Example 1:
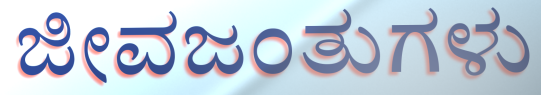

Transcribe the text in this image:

ಜೀವಜಂತುಗಳು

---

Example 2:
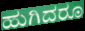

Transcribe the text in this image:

ಹುಗಿದರೂ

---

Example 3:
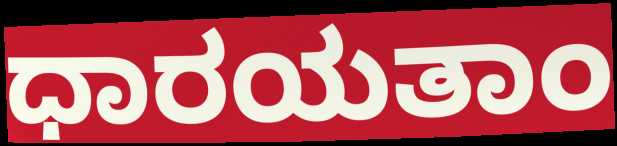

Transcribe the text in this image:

ಧಾರಯತಾಂ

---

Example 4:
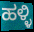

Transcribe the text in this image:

ಹಳ್ಳಿ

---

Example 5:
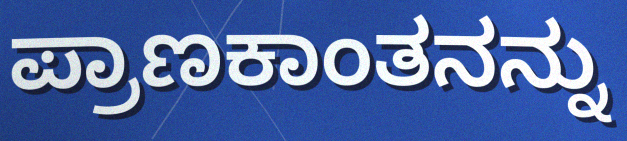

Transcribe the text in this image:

ಪ್ರಾಣಕಾಂತನನ್ನು